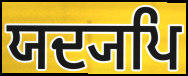
ਯਦ੍ਯਪਿ